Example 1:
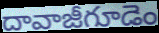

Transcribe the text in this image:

దావాజీగూడెం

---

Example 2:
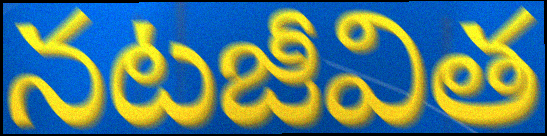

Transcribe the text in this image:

నటజీవిత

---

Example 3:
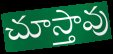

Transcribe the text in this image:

చూస్తావు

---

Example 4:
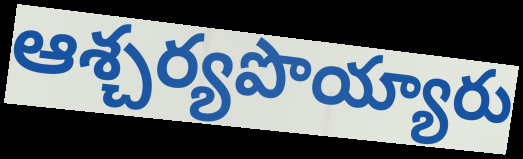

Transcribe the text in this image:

ఆశ్చర్యపొయ్యారు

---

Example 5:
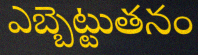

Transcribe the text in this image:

ఎబ్బెట్టుతనం